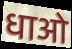
धाओ